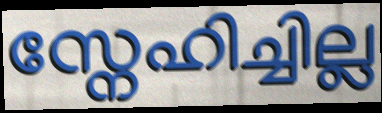
സ്നേഹിച്ചില്ല